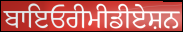
ਬਾਇਓਰੀਮੀਡੀਏਸ਼ਨ